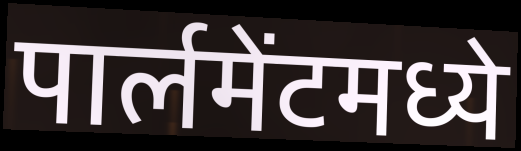
पार्लमेंटमध्ये